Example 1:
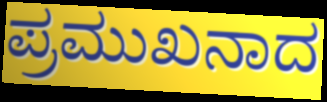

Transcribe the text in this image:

ಪ್ರಮುಖನಾದ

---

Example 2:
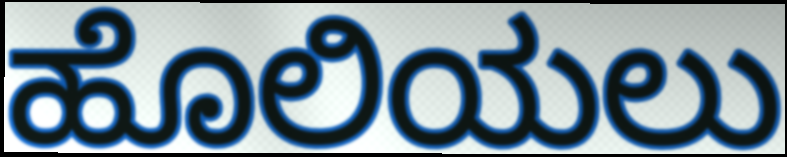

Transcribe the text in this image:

ಹೊಲಿಯಲು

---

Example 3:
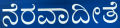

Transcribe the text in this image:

ನೆರವಾದೀತೆ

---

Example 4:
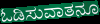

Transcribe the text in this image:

ಓಡಿಸುವಾತನೂ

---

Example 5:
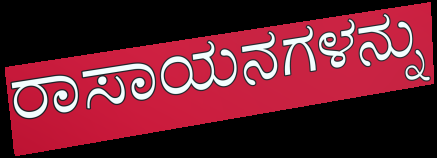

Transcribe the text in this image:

ರಾಸಾಯನಗಳನ್ನು